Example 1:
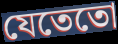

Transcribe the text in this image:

যেতেতো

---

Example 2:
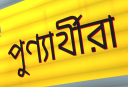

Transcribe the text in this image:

পুণ্যার্থীরা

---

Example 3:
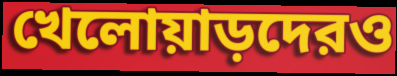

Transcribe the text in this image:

খেলোয়াড়দেরও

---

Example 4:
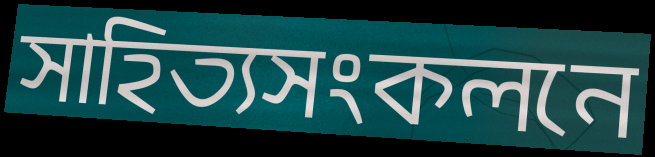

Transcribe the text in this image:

সাহিত্যসংকলনে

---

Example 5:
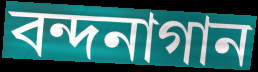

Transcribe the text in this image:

বন্দনাগান